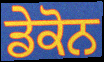
ਡੇਕੋਨ